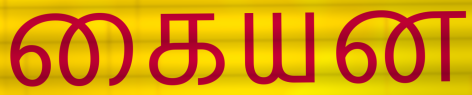
கையன